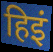
हिइं